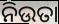
ନିଉତା